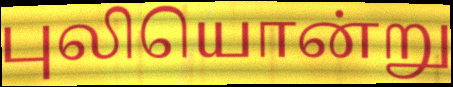
புலியொன்று